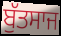
ਬੁੱਤਸਾਜ